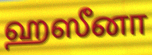
ஹஸீனா